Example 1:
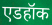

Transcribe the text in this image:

एडहॉक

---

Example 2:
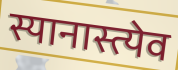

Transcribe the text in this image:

स्यानास्त्येव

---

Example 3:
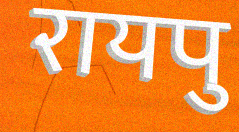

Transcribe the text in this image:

रायपु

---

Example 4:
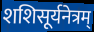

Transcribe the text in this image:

शशिसूर्यनेत्रम्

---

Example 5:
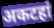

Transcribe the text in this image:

अकटहां